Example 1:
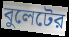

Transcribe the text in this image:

বুলেটের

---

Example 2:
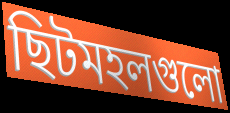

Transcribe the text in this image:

ছিটমহলগুলো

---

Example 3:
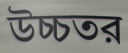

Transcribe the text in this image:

উচ্চতর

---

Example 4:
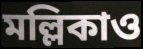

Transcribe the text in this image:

মল্লিকাও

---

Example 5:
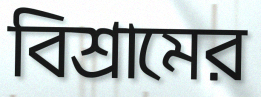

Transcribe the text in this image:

বিশ্রামের